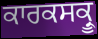
ਕਾਰਕਸਕ੍ਰੂ